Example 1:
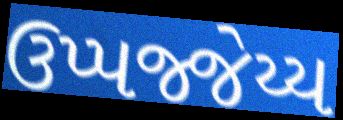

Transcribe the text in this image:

ઉપ્પજ્જેય્ય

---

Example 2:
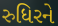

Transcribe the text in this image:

રુધિરને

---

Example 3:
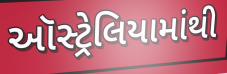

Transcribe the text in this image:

ઑસ્ટ્રેલિયામાંથી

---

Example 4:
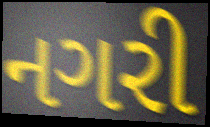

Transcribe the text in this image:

નગરી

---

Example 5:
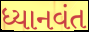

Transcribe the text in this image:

ધ્યાનવંત